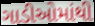
ગાડીઓમાંથી